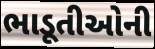
ભાડૂતીઓની